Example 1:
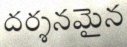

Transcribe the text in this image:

దర్శనమైన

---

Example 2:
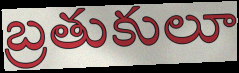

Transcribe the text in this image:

బ్రతుకులూ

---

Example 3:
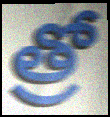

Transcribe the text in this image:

త్రో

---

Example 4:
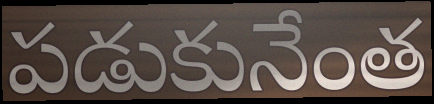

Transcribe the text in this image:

పడుకునేంత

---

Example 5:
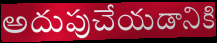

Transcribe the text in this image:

అదుపుచేయడానికి